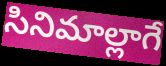
సినిమాల్లాగే